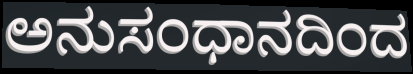
ಅನುಸಂಧಾನದಿಂದ